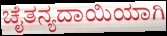
ಚೈತನ್ಯದಾಯಿಯಾಗಿ